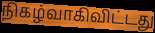
நிகழ்வாகிவிட்டது